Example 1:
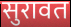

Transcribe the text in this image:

सुरावत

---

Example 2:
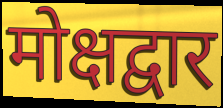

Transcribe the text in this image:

मोक्षद्वार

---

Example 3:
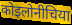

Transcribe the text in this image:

कोइलोनीचिया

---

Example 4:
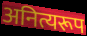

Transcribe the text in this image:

अनित्यरूप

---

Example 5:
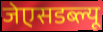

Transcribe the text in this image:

जेएसडब्ल्यू